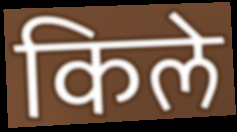
किले